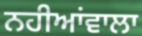
ਨਹੀਆਂਵਾਲਾ